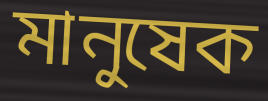
মানুষেক